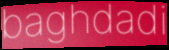
baghdadi